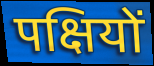
पक्षियों